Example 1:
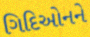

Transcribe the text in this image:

ગિદિઓનને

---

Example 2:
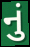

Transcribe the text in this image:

નું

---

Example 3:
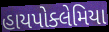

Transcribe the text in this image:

હાયપોક્લેમિયા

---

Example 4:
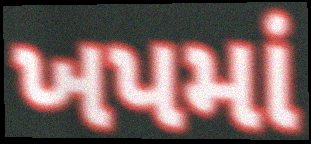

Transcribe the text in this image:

ખપમાં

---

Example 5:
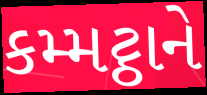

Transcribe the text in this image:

કમ્મટ્ઠાને